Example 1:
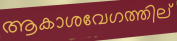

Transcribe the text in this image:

ആകാശവേഗത്തില്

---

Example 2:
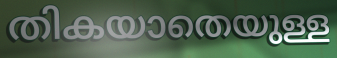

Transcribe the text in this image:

തികയാതെയുള്ള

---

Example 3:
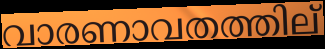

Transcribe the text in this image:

വാരണാവതത്തില്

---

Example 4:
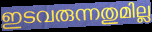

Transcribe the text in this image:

ഇടവരുന്നതുമില്ല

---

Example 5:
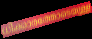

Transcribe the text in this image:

ധിക്കാരത്തോടെയുള്ള